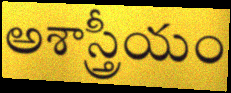
అశాస్త్రీయం